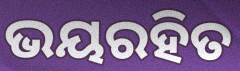
ଭୟରହିତ